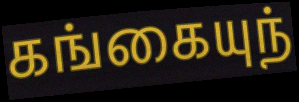
கங்கையுந்